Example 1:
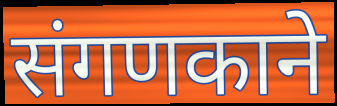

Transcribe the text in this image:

संगणकाने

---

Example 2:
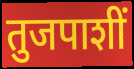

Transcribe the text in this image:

तुजपाशीं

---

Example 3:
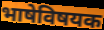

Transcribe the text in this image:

भाषेविषयक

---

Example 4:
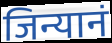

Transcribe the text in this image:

जिन्यानं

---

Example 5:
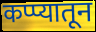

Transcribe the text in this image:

कप्प्यातून